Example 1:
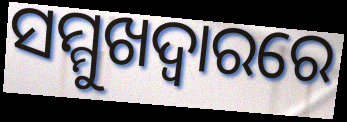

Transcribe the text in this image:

ସମ୍ମୁଖଦ୍ୱାରରେ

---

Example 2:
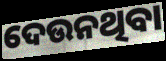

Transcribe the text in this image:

ଦେଉନଥିବା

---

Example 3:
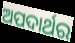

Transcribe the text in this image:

ଅପଦାର୍ଥର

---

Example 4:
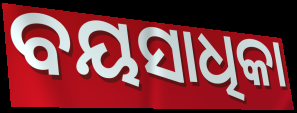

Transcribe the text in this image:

ବୟସାଧିକା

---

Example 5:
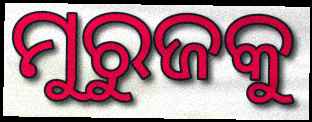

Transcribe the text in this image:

ମୁରୁଜକୁ